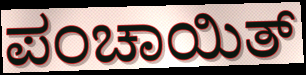
ಪಂಚಾಯಿತ್